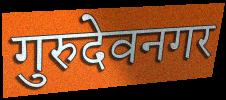
गुरुदेवनगर